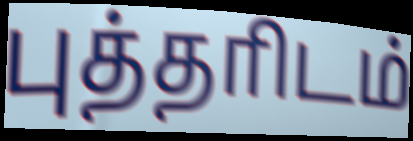
புத்தரிடம்